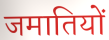
जमातियों